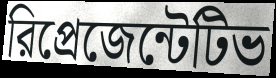
রিপ্রেজেন্টেটিভ